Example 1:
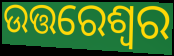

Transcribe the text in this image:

ଉତ୍ତରେଶ୍ୱର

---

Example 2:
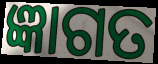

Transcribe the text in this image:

ଜ୍ଞାଗତ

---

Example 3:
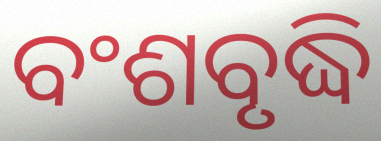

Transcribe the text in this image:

ବଂଶବୃଦ୍ଧି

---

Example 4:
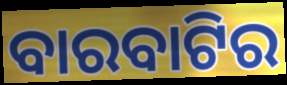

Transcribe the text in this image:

ବାରବାଟିର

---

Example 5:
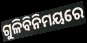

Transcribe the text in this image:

ଗୁଳିବିନିମୟରେ